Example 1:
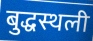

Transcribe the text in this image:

बुद्धस्थली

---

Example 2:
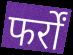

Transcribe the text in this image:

फर्रों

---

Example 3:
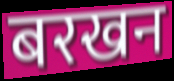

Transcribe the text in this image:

बरखन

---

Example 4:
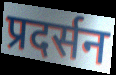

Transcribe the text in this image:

प्रदर्सन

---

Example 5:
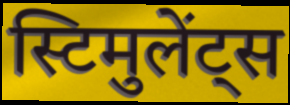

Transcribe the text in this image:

स्टिमुलेंट्स